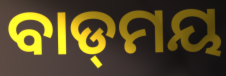
ବାଡ୍‌ମୟ